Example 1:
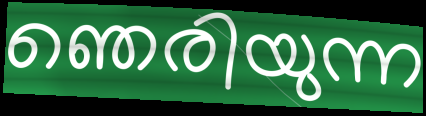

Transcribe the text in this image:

ഞെരിയുന്ന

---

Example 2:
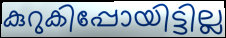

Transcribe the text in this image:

കുറുകിപ്പോയിട്ടില്ല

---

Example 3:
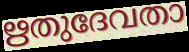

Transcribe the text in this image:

ഋതുദേവതാ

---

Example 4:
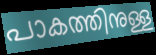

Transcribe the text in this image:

പാകത്തിനുള്ള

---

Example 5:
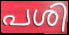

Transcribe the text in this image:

പശി